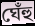
ঘেঁহু